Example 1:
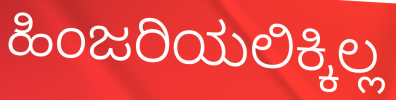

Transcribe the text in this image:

ಹಿಂಜರಿಯಲಿಕ್ಕಿಲ್ಲ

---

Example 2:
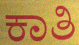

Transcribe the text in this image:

ಕಾತಿ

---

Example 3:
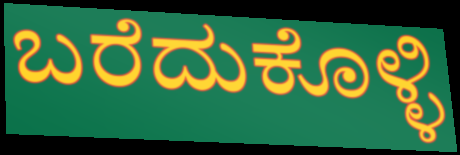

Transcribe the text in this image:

ಬರೆದುಕೊಳ್ಳಿ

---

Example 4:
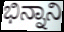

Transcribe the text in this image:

ಭಿನ್ನಾನಿ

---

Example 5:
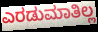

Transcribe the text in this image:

ಎರಡುಮಾತಿಲ್ಲ